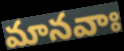
మానవాః